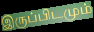
இருப்பிடமும்